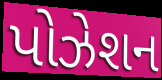
પોઝેશન